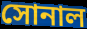
সোনাল